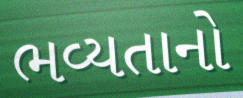
ભવ્યતાનો